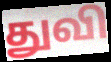
துவி